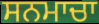
ਸਨਮਾਚਾ